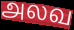
அலவ